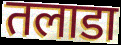
तलाडा